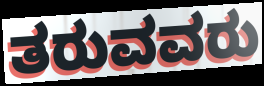
ತರುವವರು